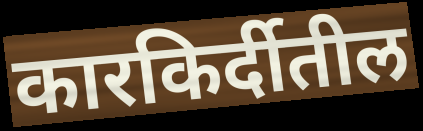
कारकिर्दीतील